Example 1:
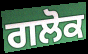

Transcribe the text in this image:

ਗਲੋਕ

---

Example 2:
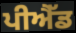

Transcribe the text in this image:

ਪੀਐੱਡ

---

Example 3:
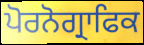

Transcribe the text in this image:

ਪੋਰਨੋਗ੍ਰਾਫਿਕ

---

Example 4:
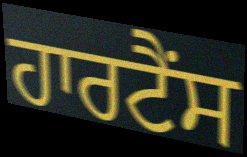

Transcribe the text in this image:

ਹਾਰਟੈਂਸ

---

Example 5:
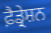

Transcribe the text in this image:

ਫ਼ੈਡ੍ਰੇਸ਼ਨ